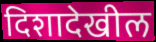
दिशादेखील